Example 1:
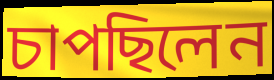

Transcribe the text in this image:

চাপছিলেন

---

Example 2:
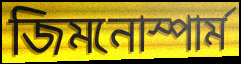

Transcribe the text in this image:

জিমনোস্পার্ম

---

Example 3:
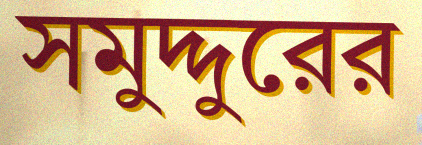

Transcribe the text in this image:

সমুদ্দুরের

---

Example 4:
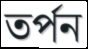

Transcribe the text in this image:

তর্পন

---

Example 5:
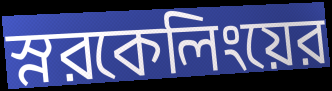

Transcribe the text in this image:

স্নরকেলিংয়ের